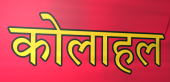
कोलाहल